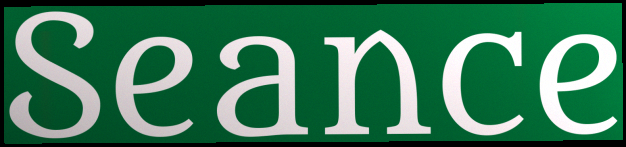
Seance